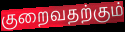
குறைவதற்கும்